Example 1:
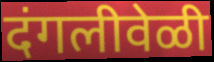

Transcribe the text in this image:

दंगलीवेळी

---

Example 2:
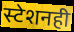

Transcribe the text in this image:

स्टेशनही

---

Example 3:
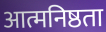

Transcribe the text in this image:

आत्मनिष्ठता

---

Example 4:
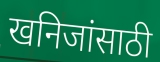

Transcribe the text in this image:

खनिजांसाठी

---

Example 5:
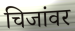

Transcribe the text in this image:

चिजांवर